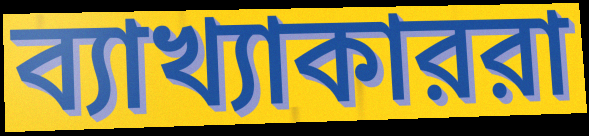
ব্যাখ্যাকাররা